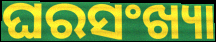
ଘରସଂଖ୍ୟା